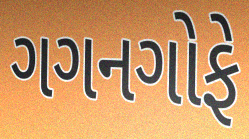
ગગનગોફે